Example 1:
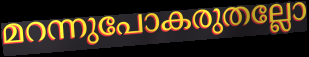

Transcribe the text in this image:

മറന്നുപോകരുതല്ലോ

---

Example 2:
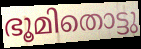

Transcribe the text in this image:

ഭൂമിതൊട്ടു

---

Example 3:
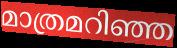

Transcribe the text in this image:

മാത്രമറിഞ്ഞ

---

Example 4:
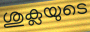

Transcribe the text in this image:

ശുക്ലയുടെ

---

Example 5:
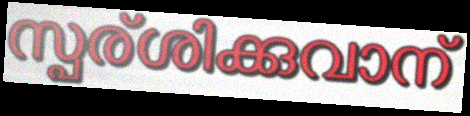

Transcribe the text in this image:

സ്പര്ശിക്കുവാന്